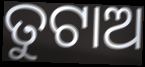
ତୁଟାଅ